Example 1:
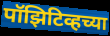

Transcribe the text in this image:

पॉझिटिव्हच्या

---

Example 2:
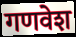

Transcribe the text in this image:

गणवेश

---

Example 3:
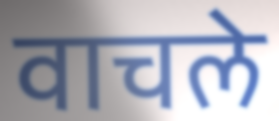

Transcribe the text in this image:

वाचले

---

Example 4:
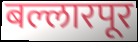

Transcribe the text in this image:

बल्लारपूर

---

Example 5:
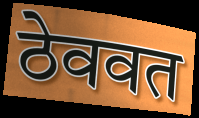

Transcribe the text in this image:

ठेववत